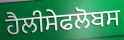
ਹੈਲੀਸੇਫਲੋਬਸ